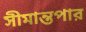
সীমান্তপার